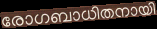
രോഗബാധിതനായി